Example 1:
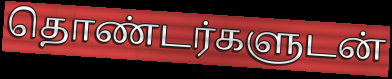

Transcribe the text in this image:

தொண்டர்களுடன்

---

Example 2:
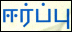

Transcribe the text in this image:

ஈர்ப்பு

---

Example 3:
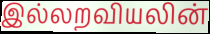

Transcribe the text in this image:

இல்லறவியலின்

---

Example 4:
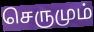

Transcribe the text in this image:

செருமும்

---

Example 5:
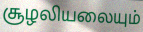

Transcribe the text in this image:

சூழலியலையும்